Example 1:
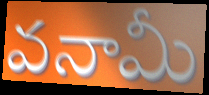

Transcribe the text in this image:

వనామీ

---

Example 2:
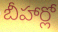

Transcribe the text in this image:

బీహార్లో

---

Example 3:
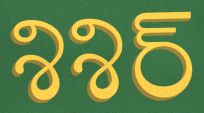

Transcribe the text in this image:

శిశిర్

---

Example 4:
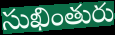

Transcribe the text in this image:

సుఖింతురు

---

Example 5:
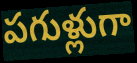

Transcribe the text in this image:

పగుళ్లుగా